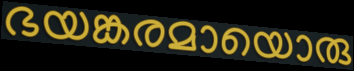
ഭയങ്കരമായൊരു